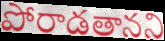
పోరాడతానని